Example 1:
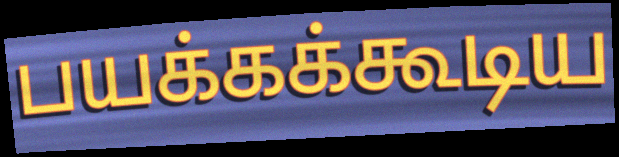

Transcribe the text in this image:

பயக்கக்கூடிய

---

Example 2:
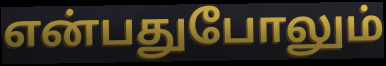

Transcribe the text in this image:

என்பதுபோலும்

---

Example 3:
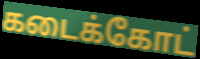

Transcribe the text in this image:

கடைக்கோட்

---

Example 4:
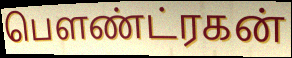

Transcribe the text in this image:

பௌண்ட்ரகன்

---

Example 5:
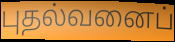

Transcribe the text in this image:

புதல்வனைப்